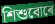
শিশুবোৰে